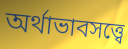
অর্থাভাবসত্ত্বে